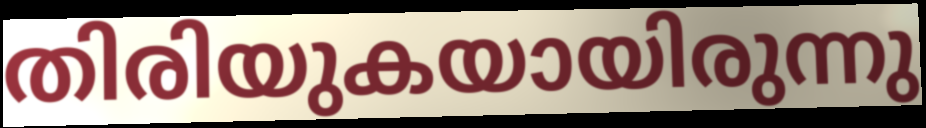
തിരിയുകയായിരുന്നു